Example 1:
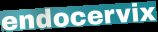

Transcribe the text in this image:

endocervix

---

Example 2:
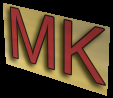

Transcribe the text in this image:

MK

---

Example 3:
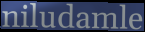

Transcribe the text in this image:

niludamle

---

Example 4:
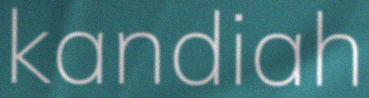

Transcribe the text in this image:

kandiah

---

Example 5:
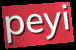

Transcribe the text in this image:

peyi